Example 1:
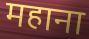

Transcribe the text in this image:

महाना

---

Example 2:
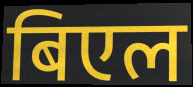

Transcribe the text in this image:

बिएल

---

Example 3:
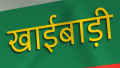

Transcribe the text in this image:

खाईबाड़ी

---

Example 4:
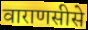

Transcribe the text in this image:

वाराणसीसे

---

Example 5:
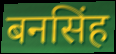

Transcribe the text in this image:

बनसिंह